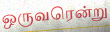
ஒருவரென்று